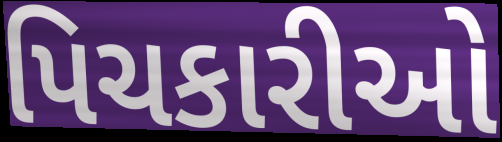
પિચકારીઓ